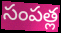
సంపత్ల